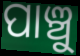
ପାଞ୍ଚୁ